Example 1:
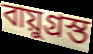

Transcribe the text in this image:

বায়ুগ্রস্ত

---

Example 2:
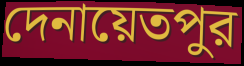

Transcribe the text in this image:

দেনায়েতপুর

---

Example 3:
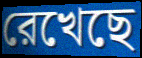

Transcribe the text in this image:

রেখেছে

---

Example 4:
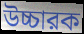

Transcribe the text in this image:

উচ্চারক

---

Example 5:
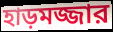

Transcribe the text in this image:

হাড়মজ্জার